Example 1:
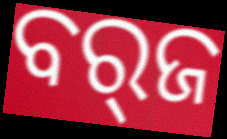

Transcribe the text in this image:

ବର୍‌ଜ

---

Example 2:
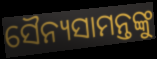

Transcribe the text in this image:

ସୈନ୍ୟସାମନ୍ତଙ୍କୁ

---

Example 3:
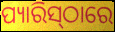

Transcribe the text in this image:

ପ୍ୟାରିସ୍‍ଠାରେ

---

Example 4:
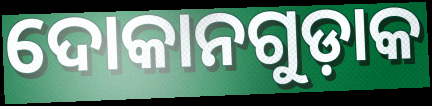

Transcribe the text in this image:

ଦୋକାନଗୁଡ଼ାକ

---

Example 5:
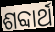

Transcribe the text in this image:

ଶବ୍ଦାର୍ଥ